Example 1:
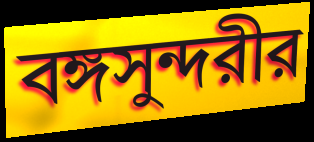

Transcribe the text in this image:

বঙ্গসুন্দরীর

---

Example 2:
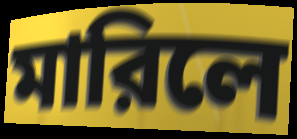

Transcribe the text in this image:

মারিলে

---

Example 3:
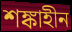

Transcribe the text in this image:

শঙ্কাহীন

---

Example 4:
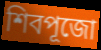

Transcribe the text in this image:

শিবপূজো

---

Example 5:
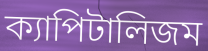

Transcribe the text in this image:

ক্যাপিটালিজম